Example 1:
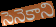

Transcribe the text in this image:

సెనెకాని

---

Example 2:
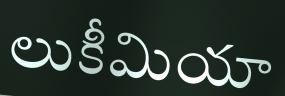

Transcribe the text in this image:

లుకీమియా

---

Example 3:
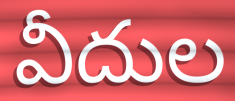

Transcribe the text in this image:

వీదుల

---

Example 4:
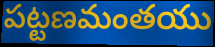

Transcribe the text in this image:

పట్టణమంతయు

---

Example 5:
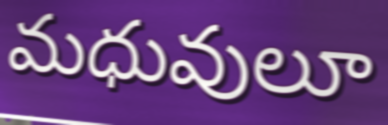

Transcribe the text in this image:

మధువులూ